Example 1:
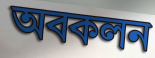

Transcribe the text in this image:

অবকলন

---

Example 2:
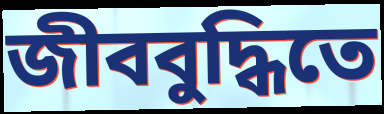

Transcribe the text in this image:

জীববুদ্ধিতে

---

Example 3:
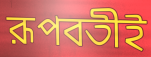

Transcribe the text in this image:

রূপবতীই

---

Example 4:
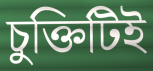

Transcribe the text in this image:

চুক্তিটিই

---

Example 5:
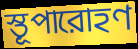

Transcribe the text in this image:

স্তূপারোহণ